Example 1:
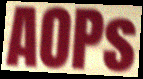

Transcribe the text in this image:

AOPs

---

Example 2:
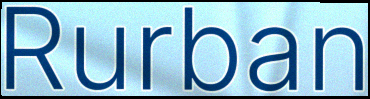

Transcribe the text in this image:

Rurban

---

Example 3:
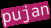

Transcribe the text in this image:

pujan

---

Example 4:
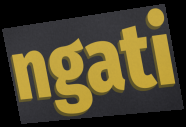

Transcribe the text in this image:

ngati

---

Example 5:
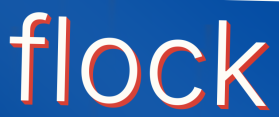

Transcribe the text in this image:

flock